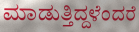
ಮಾಡುತ್ತಿದ್ದಳೆಂದರೆ